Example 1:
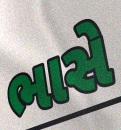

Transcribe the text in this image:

ભાસે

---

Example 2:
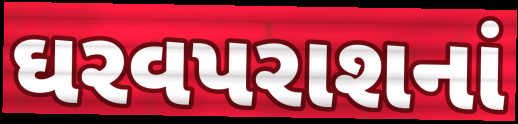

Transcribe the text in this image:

ઘરવપરાશનાં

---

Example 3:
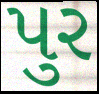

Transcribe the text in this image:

પુર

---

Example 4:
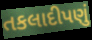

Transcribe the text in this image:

તકલાદીપણું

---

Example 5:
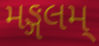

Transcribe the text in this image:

મઙ્ગલમ્